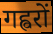
गह्वरों